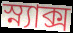
স্ন্যাক্স